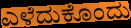
ಎಳೆದುಕೊಂದು